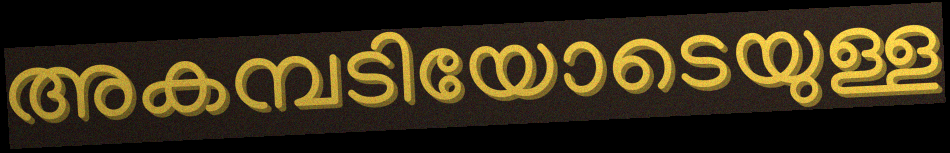
അകമ്പടിയോടെയുള്ള